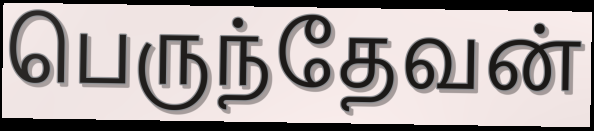
பெருந்தேவன்